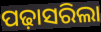
ପଢ଼ାସରିଲା